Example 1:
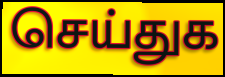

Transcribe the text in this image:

செய்துக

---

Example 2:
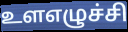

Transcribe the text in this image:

உளஎழுச்சி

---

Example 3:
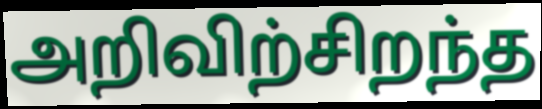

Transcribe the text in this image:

அறிவிற்சிறந்த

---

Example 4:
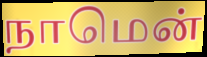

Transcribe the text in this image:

நாமென்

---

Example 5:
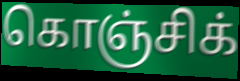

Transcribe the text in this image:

கொஞ்சிக்